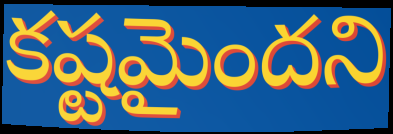
కష్టమైందని